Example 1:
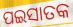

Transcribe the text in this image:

ପଇସାତକ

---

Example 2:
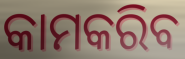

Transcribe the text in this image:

କାମକରିବ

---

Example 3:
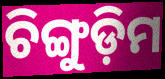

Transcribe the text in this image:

ଚିଙ୍ଗୁଡ଼ିମ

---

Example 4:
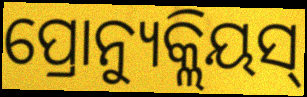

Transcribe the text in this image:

ପ୍ରୋନ୍ୟୁକ୍ଲିୟସ୍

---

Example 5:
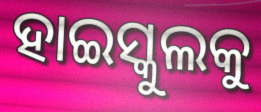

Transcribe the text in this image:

ହାଇସ୍କୁଲକୁ